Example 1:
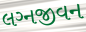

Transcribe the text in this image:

લગ્‍નજીવન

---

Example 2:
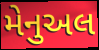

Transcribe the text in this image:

મેનુઅલ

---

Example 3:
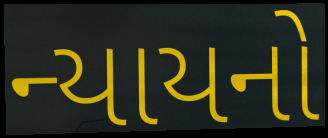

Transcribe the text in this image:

ન્યાયનો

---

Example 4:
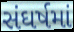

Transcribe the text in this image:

સંઘર્ષમાં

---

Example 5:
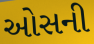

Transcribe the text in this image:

ઓસની